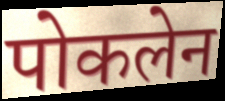
पोकलेन